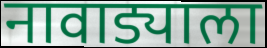
नावाड्याला